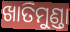
ଖାତିମୁଣ୍ଡା